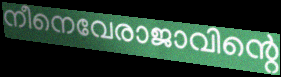
നീനെവേരാജാവിന്റെ